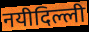
नयीदिल्ली